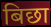
बिछा